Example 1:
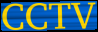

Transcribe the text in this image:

CCTV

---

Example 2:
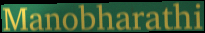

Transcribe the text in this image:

Manobharathi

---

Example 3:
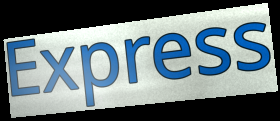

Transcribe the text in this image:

Express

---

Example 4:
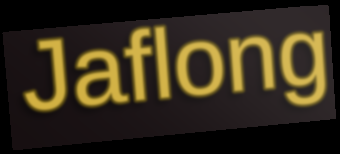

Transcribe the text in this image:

Jaflong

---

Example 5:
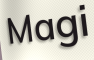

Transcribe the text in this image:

Magi